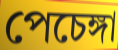
পেচেঙ্গা